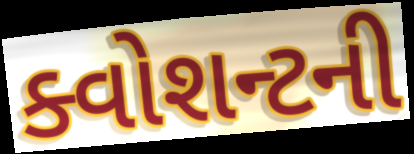
ક્વોશન્ટની